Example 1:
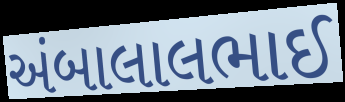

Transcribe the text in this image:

અંબાલાલભાઈ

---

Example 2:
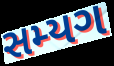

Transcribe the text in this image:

સમ્યગ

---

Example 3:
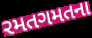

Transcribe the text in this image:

રમતગમતના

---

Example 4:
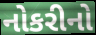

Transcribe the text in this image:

નોકરીનો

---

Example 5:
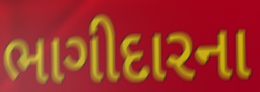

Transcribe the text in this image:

ભાગીદારના